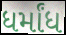
ધર્માંધ